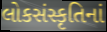
લોકસંસ્કૃતિનાં